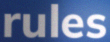
rules